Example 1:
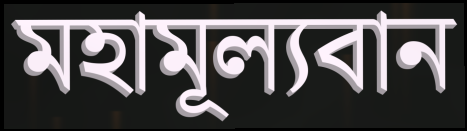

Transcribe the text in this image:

মহামূল্যবান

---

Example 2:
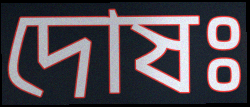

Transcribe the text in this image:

দোষঃ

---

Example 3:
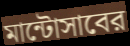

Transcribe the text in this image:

মান্টোসাবের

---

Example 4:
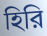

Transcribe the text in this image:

হিরি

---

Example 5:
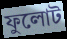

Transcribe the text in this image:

ফুলোট